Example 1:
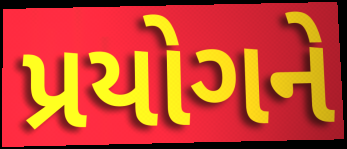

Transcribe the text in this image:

પ્રયોગને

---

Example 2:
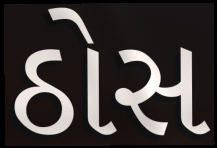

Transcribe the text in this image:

ઠોસ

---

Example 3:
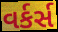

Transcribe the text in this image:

વર્કર્સ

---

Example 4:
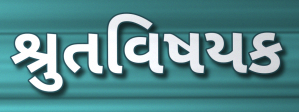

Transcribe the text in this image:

શ્રુતવિષયક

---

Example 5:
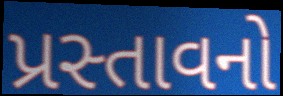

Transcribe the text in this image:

પ્રસ્તાવનો